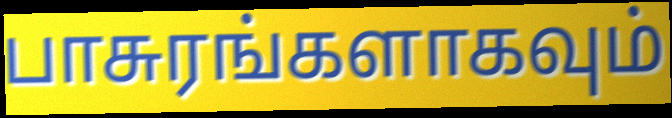
பாசுரங்களாகவும்